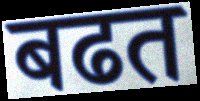
बढत